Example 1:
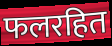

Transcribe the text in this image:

फलरहित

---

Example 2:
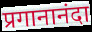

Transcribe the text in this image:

प्रगानानंदा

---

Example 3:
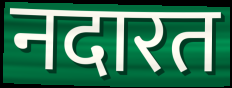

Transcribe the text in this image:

नदारत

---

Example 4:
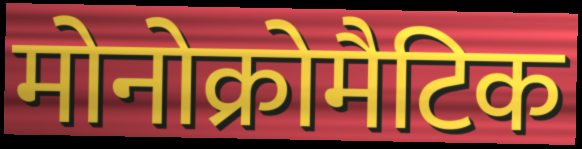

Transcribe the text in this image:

मोनोक्रोमैटिक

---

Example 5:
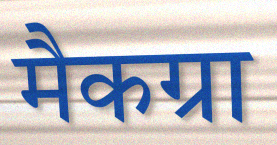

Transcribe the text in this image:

मैकग्रा